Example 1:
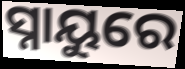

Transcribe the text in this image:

ସ୍ନାୟୁରେ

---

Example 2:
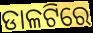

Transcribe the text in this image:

ଡାଳଟିରେ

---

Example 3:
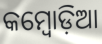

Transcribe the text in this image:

କମ୍ୱୋଡ଼ିଆ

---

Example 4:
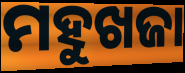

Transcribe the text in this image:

ମହୁଖଜା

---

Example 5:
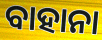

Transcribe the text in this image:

ବାହାନା